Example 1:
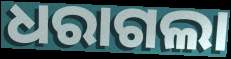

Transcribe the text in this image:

ଧରାଗଲା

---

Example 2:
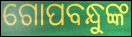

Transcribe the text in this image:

ଗୋପବନ୍ଧୁଙ୍କ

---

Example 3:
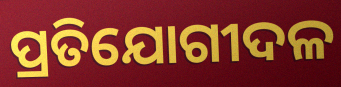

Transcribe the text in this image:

ପ୍ରତିଯୋଗୀଦଳ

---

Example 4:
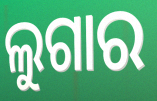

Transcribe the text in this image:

ଲୁଗାର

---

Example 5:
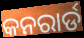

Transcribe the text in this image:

କନରାର୍ଡ